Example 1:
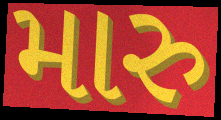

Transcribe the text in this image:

મારુ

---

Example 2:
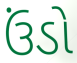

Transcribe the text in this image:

ઉંડો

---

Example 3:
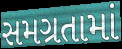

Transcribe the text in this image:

સમગ્રતામાં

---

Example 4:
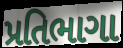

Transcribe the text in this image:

પ્રતિભાગા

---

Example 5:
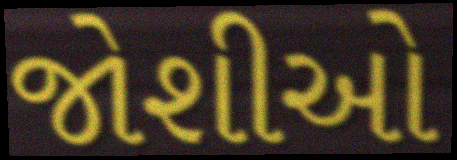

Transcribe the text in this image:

જોશીઓ